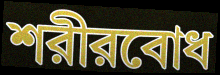
শরীরবোধ